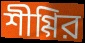
শীগ্গির